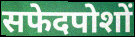
सफेदपोशों